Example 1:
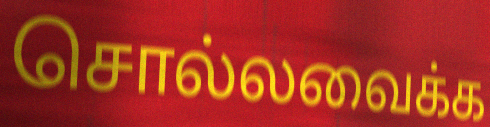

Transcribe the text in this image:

சொல்லவைக்க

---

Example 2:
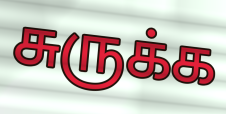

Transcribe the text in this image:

சுருக்க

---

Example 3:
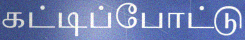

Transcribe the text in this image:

கட்டிப்போட்டு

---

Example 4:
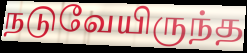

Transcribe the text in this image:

நடுவேயிருந்த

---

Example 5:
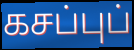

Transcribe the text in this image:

கசப்புப்